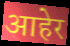
आहेर